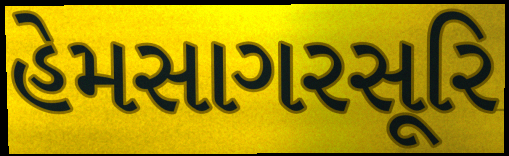
હેમસાગરસૂરિ